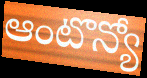
ఆంటొన్యో